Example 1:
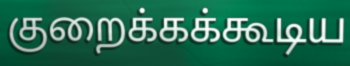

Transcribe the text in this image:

குறைக்கக்கூடிய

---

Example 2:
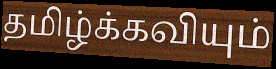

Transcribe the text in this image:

தமிழ்க்கவியும்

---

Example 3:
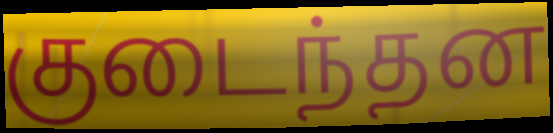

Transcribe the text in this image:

குடைந்தன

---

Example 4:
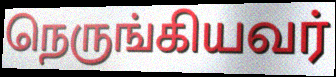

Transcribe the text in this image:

நெருங்கியவர்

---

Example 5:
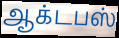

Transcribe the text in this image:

ஆக்டபஸ்